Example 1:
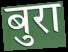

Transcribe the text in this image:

बुरा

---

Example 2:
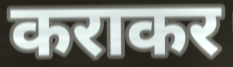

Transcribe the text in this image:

कराकर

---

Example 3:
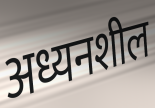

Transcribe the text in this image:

अध्यनशील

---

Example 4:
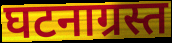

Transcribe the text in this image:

घटनाग्रस्त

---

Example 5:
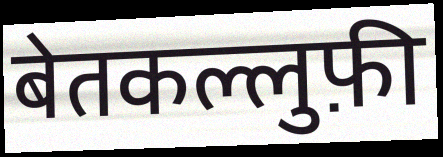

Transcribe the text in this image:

बेतकल्लुफ़ी